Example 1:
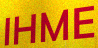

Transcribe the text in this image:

IHME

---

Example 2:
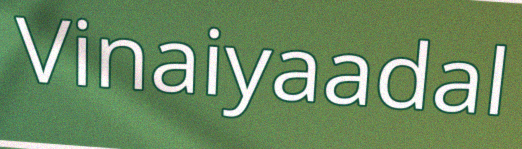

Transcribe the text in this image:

Vinaiyaadal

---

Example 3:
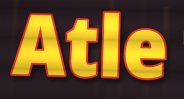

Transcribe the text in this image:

Atle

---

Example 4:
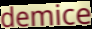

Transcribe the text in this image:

demice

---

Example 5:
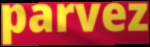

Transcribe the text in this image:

parvez